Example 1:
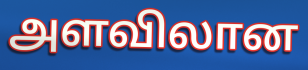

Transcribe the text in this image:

அளவிலான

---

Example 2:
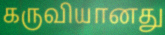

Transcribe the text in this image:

கருவியானது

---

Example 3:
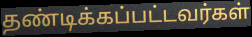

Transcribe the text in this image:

தண்டிக்கப்பட்டவர்கள்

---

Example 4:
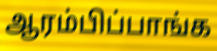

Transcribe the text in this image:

ஆரம்பிப்பாங்க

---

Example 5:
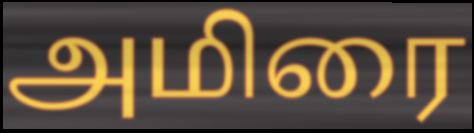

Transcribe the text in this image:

அமிரை